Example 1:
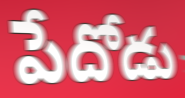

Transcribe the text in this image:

పేదోడు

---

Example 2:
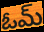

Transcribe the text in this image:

ఓమ్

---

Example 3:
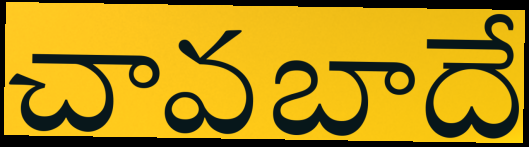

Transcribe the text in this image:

చావబాదే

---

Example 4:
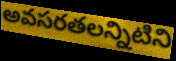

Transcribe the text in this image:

అవసరతలన్నిటిని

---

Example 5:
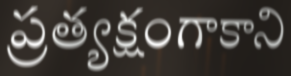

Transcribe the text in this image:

ప్రత్యక్షంగాకాని